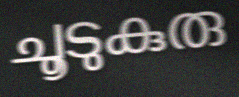
ചൂടുകുരു